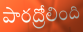
పారద్రోలింది